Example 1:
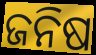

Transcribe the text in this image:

ଜନିଷ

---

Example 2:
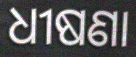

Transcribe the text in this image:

ଧୀଷଣା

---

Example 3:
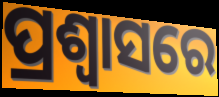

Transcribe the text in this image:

ପ୍ରଶ୍ଵାସରେ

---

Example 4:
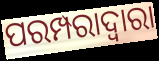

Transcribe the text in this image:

ପରମ୍ପରାଦ୍ବାରା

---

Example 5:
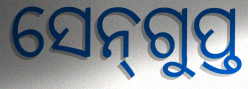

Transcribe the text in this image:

ସେନ୍‌ଗୁପ୍ତ